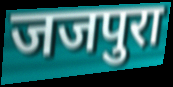
जजपुरा